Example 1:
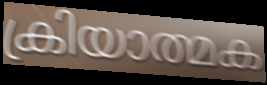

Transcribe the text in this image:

ക്രിയാത്മക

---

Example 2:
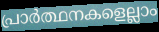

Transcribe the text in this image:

പ്രാർത്ഥനകളെല്ലാം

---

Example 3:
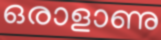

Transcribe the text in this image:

ഒരാളാണു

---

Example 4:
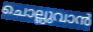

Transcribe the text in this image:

ചൊല്ലുവാൻ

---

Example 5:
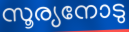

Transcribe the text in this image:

സൂര്യനോടു